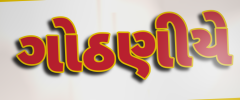
ગોઠણીયે